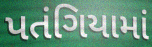
પતંગિયામાં